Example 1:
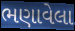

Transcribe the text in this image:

ભણાવેલા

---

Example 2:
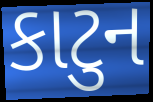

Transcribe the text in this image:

કાટુન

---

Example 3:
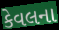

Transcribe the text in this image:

કેવલના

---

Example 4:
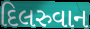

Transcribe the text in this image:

દિલરુવાન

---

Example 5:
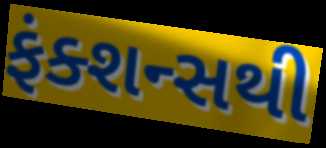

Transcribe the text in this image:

ફંક્શન્સથી